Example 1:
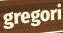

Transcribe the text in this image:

gregori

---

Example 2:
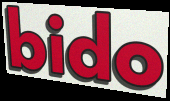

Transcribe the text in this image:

bido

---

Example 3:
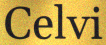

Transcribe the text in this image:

Celvi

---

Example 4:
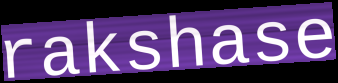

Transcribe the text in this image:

rakshase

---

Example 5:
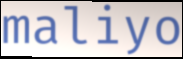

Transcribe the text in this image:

maliyo